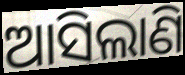
ଆସିଲାଣି